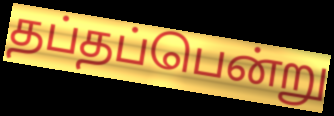
தப்தப்பென்று